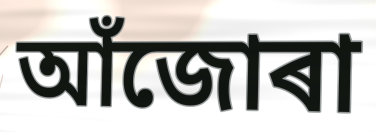
আঁজোৰা